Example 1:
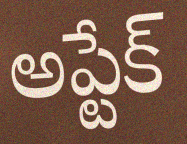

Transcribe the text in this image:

అప్టేక్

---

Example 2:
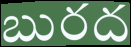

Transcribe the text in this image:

బురద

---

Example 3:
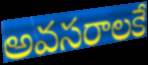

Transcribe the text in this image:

అవసరాలకే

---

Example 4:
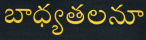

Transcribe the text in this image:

బాధ్యతలనూ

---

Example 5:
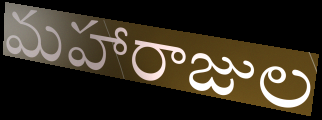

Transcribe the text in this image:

మహారాజుల